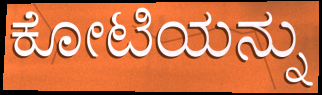
ಕೋಟಿಯನ್ನು